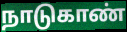
நாடுகாண்